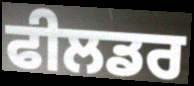
ਫੀਲਡਰ